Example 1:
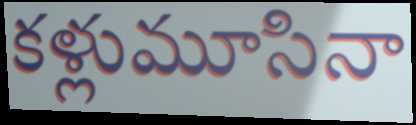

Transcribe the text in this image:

కళ్లుమూసినా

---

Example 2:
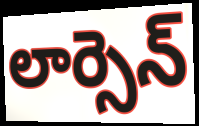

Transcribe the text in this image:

లార్సెన్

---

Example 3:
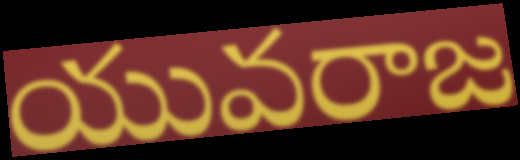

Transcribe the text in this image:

యువరాజ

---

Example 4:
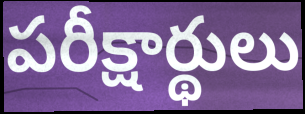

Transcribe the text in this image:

పరీక్షార్థులు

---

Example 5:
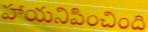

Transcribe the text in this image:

హాయనిపించింది